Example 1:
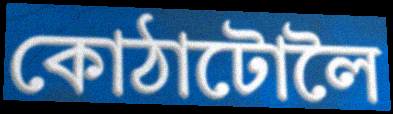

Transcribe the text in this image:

কোঠাটোলৈ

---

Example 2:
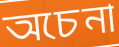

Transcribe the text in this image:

অচেনা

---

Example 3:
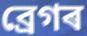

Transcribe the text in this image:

ব্ৰেগৰ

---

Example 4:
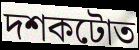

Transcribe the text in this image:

দশকটোত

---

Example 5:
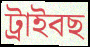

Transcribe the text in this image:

ট্ৰাইবছ